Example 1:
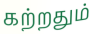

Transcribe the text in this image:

கற்றதும்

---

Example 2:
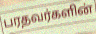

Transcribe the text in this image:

பரதவர்களின்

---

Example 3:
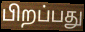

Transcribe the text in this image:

பிறப்பது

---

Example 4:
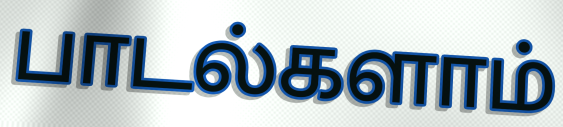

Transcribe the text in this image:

பாடல்களாம்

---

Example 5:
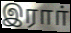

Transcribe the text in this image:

இரார்